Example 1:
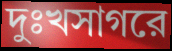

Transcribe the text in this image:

দুঃখসাগরে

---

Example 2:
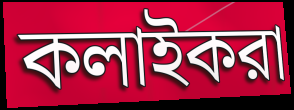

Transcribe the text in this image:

কলাইকরা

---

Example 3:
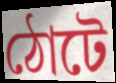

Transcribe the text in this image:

ঠোটে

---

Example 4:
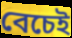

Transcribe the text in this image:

বেচেই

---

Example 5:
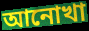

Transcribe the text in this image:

আনোখা